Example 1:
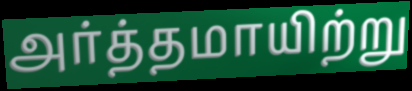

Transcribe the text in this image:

அர்த்தமாயிற்று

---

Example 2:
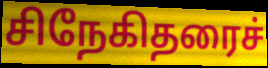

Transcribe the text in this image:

சிநேகிதரைச்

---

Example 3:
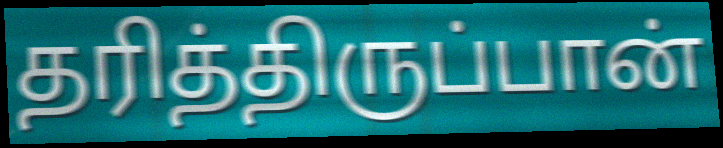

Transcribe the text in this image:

தரித்திருப்பான்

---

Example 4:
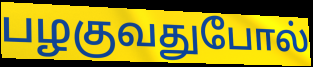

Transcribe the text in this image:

பழகுவதுபோல்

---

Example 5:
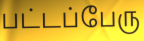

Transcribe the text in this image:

பட்டப்பேரு